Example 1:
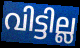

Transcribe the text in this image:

വിട്ടില്ല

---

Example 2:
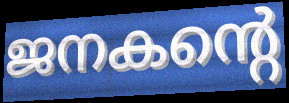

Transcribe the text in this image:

ജനകന്റെ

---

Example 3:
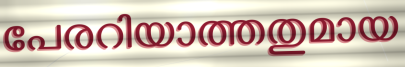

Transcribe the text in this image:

പേരറിയാത്തതുമായ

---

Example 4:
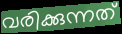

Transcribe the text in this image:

വരിക്കുന്നത്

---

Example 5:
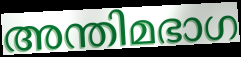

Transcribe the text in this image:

അന്തിമഭാഗ